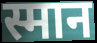
स्मान